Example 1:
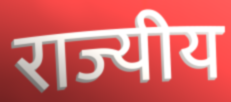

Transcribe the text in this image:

राज्यीय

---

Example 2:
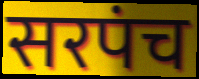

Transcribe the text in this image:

सरपंच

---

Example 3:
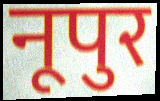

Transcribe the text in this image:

नूपुर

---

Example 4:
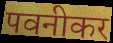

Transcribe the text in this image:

पवनीकर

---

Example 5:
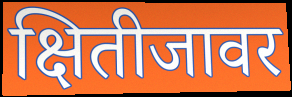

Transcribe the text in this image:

क्षितीजावर